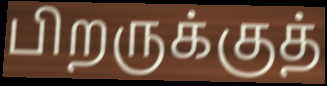
பிறருக்குத்